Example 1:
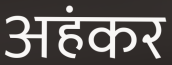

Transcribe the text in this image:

अहंकर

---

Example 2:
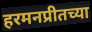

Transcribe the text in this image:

हरमनप्रीतच्या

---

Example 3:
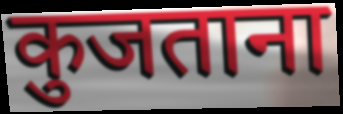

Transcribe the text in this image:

कुजताना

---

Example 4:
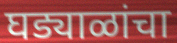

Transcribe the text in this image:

घड्याळांचा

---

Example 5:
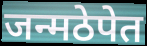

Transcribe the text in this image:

जन्मठेपेत